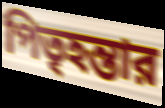
পিতৃহন্তার